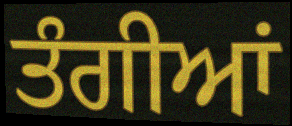
ਤੰਗੀਆਂ